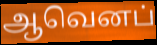
ஆவெனப்